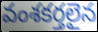
వంశకర్తలైన